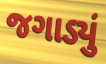
જગાડ્યું